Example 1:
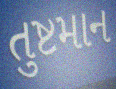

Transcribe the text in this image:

તુષ્ટમાન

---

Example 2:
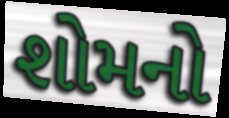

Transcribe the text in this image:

શોમનો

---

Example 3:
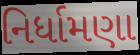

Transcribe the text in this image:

નિર્ધામણા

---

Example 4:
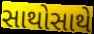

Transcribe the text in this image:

સાથોસાથે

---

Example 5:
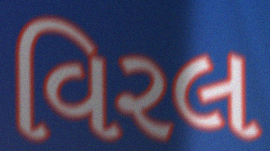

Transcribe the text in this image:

વિરલ